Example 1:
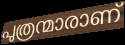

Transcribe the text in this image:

പുത്രന്മാരാണ്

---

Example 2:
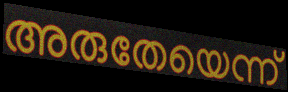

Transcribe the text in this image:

അരുതേയെന്ന്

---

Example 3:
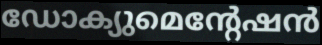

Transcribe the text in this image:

ഡോക്യുമെന്റേഷൻ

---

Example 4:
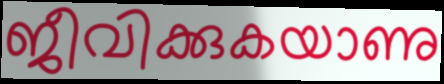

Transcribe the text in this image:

ജീവിക്കുകയാണു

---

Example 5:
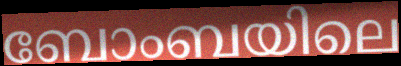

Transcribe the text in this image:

ബോംബയിലെ